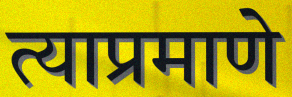
त्याप्रमाणे